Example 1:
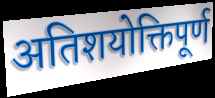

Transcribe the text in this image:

अतिशयोक्तिपूर्ण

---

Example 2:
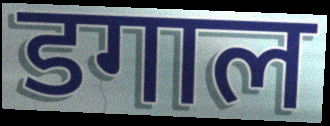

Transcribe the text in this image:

डगाल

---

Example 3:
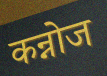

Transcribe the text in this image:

कन्नोज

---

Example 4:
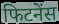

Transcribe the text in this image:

फिटनेंस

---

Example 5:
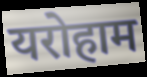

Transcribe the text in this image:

यरोहाम